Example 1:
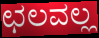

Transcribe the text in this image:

ಛಲವಲ್ಲ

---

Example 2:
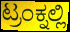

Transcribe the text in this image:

ಟ್ರಂಕ್ನಲ್ಲಿ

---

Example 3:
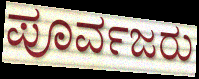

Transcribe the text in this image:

ಪೂರ್ವಜರು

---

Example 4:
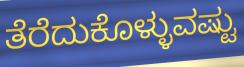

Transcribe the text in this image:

ತೆರೆದುಕೊಳ್ಳುವಷ್ಟು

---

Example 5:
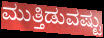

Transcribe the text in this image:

ಮುತ್ತಿಡುವಷ್ಟು